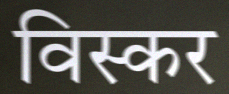
विस्कर